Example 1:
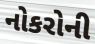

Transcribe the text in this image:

નોકરોની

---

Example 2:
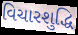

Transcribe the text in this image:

વિચારશુદ્ધિ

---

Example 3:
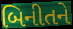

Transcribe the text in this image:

બિનીતને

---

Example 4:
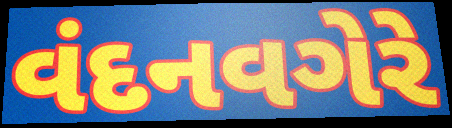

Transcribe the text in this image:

વંદનવગેરે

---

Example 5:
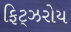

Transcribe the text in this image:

ફિટ્ઝરોય